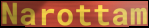
Narottam